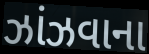
ઝાંઝવાના